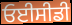
ਓਈਸੀਡੀ